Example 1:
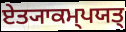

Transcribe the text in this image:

ਏਤ੍ਯਾਕਮ੍ਪਯਤ੍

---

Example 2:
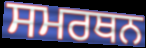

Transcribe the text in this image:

ਸਮਰਥਨ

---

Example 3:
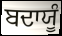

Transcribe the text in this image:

ਬਦਾਯੂੰ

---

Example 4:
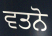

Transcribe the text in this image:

ਵਤਨੋ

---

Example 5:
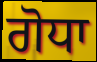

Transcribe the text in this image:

ਗੋਧਾ